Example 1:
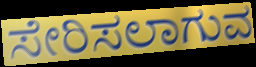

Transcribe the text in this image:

ಸೇರಿಸಲಾಗುವ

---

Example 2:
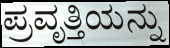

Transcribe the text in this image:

ಪ್ರವೃತ್ತಿಯನ್ನು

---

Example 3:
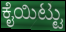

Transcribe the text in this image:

ಕೈಯಿಟ್ಟು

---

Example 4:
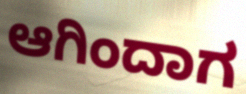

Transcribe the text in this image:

ಆಗಿಂದಾಗ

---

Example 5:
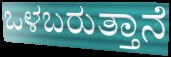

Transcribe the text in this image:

ಒಳಬರುತ್ತಾನೆ